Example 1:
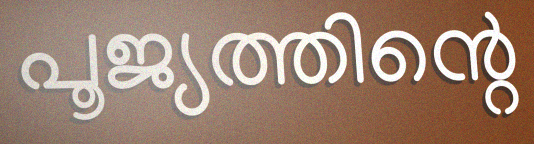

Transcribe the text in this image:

പൂജ്യത്തിന്റെ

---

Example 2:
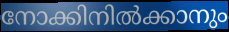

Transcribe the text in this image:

നോക്കിനിൽക്കാനും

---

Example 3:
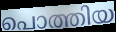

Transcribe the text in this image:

പൊത്തിയ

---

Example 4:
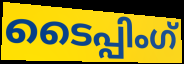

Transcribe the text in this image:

ടൈപ്പിംഗ്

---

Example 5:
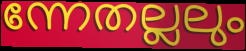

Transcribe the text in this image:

ന്നേതല്ലലും